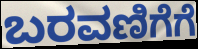
ಬರವಣಿಗೆಗೆ